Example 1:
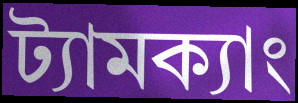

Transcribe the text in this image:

ট্যামক্যাং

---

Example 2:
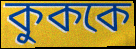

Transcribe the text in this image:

কুককে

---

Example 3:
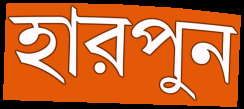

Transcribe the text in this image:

হারপুন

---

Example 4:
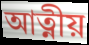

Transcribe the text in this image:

আত্নীয়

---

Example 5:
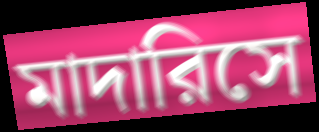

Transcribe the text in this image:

মাদারিসে